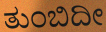
ತುಂಬಿದೀ